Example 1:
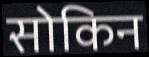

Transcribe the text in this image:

सोकिन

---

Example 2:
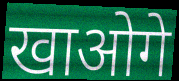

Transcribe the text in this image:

खाओगे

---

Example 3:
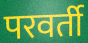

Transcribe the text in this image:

परवर्ती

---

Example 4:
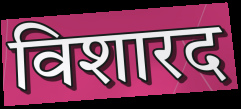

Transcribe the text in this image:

विशारद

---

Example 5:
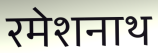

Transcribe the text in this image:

रमेशनाथ